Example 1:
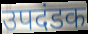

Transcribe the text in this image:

उपदंडक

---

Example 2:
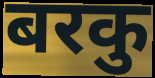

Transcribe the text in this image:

बरकु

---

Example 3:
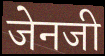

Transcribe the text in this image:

जेनजी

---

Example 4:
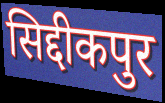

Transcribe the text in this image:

सिद्दीकपुर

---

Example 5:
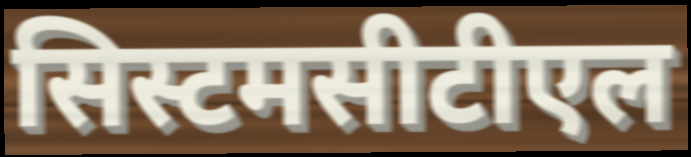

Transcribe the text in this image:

सिस्टमसीटीएल